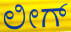
ಲೀಗ್